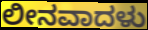
ಲೀನವಾದಳು